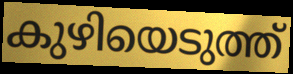
കുഴിയെടുത്ത്